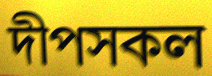
দীপসকল